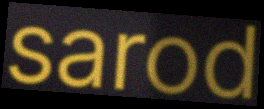
sarod